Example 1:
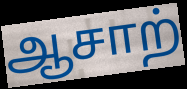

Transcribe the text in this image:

ஆசாற்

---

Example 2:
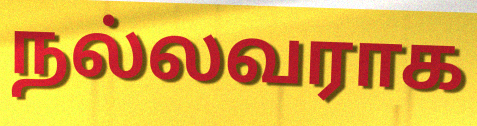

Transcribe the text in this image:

நல்லவராக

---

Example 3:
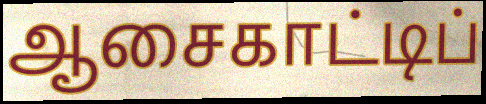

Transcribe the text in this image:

ஆசைகாட்டிப்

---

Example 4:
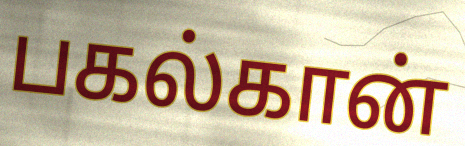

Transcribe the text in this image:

பகல்கான்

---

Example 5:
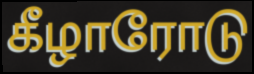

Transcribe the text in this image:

கீழாரோடு